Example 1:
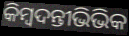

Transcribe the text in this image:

କିମ୍ବଦନ୍ତୀଭିଭିକ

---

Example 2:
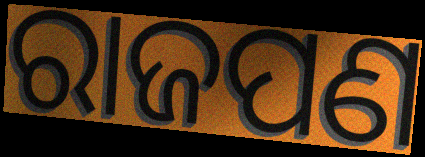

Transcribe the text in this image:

ରାଜପଣ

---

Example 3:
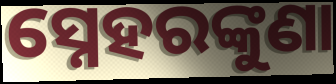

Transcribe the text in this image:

ସ୍ନେହରଙ୍କୁଣା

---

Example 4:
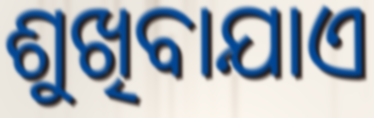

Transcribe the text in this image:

ଶୁଖିବାଯାଏ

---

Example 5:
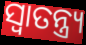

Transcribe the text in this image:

ସ୍ଵାତନ୍ତ୍ର୍ୟ